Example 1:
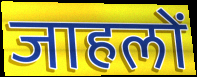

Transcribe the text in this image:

जाहलों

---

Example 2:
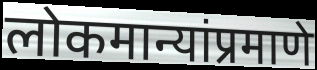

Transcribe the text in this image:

लोकमान्यांप्रमाणे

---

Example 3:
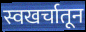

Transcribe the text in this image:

स्वखर्चातून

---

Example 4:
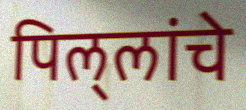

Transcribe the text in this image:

पिल्लांचे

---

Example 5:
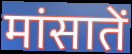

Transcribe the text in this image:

मांसातें